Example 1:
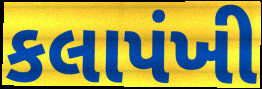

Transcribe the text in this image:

કલાપંખી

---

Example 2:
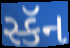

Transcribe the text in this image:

સ્કૅન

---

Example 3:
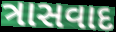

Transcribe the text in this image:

ત્રાસવાદ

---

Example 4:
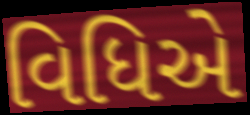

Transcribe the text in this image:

વિધિએ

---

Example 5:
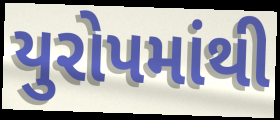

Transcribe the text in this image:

યુરોપમાંથી